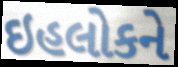
ઇહલોકને